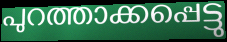
പുറത്താക്കപ്പെട്ടു